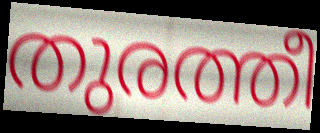
തുരത്തീ